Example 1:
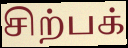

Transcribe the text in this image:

சிற்பக்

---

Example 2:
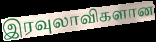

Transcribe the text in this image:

இரவுலாவிகளான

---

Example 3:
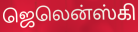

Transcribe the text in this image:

ஜெலென்ஸ்கி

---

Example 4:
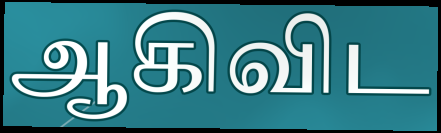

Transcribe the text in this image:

ஆகிவிட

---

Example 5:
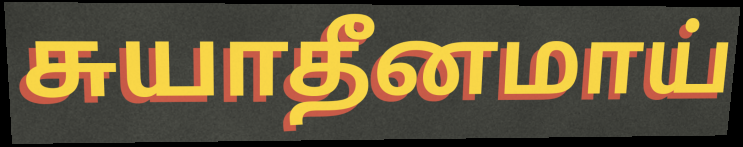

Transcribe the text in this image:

சுயாதீனமாய்